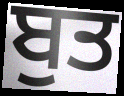
ਬੁਤ